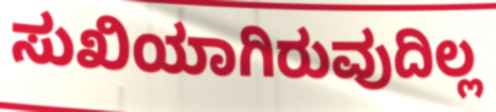
ಸುಖಿಯಾಗಿರುವುದಿಲ್ಲ